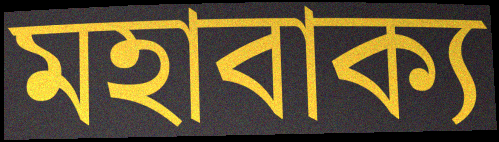
মহাবাক্য